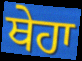
ਥੇਹਾ